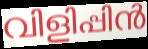
വിളിപ്പിൻ